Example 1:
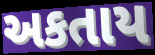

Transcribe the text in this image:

અકતાય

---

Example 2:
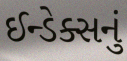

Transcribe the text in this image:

ઈન્ડેક્સનું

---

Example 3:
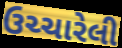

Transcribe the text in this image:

ઉચ્ચારેલી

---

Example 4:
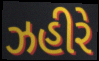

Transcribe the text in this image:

ઝહીરે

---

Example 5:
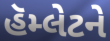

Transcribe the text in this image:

હૅમ્લેટને